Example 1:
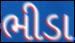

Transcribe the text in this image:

ભીડા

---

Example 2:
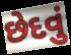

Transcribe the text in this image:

છેદવું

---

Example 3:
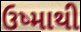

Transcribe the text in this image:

ઉષ્માથી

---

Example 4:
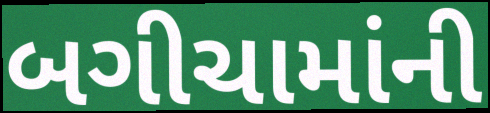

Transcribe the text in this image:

બગીચામાંની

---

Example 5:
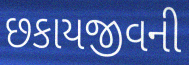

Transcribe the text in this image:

છકાયજીવની